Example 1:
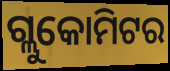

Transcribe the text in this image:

ଗ୍ଲୁକୋମିଟର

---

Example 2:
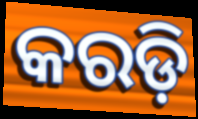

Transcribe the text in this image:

କରଡ଼ି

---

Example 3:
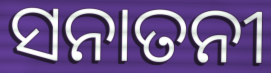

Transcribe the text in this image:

ସନାତନୀ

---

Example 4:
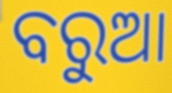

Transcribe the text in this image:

ବରୁଆ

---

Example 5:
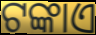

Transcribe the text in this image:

ଟଙ୍କାଏ